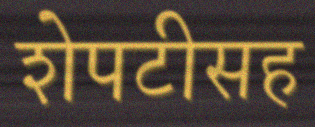
शेपटीसह